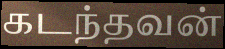
கடந்தவன்